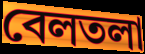
বেলতলা